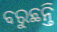
ବରୁଛନ୍ତି